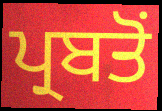
ਪ੍ਰਬਤੋਂ